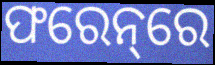
ଫରେନ୍‌ରେ